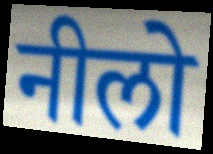
नीलो